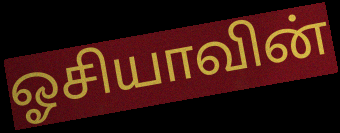
ஓசியாவின்